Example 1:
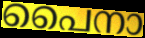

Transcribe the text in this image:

പൈനാ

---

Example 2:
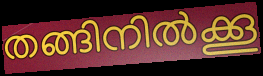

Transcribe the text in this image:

തങ്ങിനിൽക്കൂ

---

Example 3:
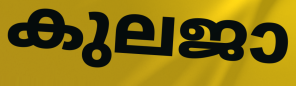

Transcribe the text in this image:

കുലജാ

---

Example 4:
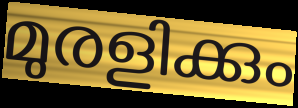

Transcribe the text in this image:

മുരളിക്കും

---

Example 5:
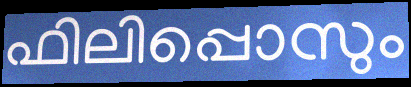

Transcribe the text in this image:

ഫിലിപ്പൊസും